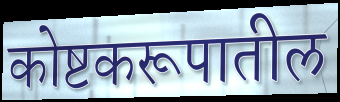
कोष्टकरूपातील